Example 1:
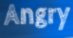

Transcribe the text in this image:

Angry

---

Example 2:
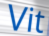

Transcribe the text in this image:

Vit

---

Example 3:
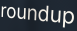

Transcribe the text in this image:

roundup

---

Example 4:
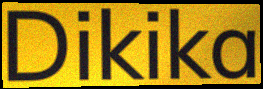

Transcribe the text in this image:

Dikika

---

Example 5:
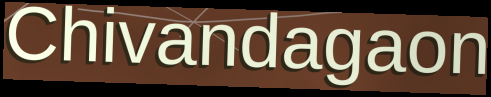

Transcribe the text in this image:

Chivandagaon